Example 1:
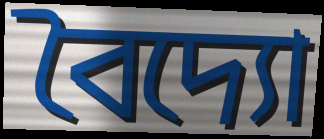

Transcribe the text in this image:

বৈদ্যো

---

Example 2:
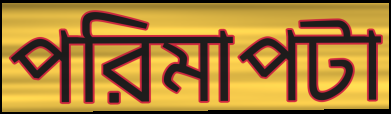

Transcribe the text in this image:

পরিমাপটা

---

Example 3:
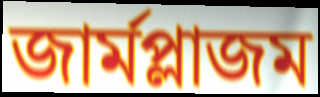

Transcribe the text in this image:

জার্মপ্লাজম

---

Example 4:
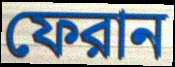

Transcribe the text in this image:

ফেরান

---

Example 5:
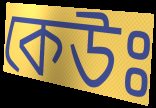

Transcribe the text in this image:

কেউঃ